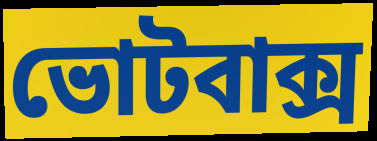
ভোটবাক্স